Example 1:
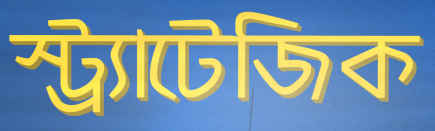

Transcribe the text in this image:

স্ট্র্যাটেজিক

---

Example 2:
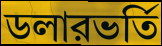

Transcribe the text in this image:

ডলারভর্তি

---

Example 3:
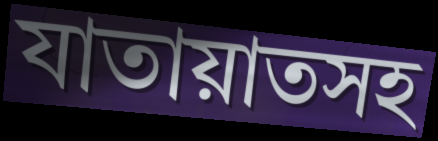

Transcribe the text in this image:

যাতায়াতসহ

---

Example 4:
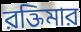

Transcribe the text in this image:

রক্তিমার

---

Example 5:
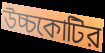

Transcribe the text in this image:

উচ্চকোটির